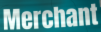
Merchant